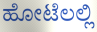
ಹೋಟೆಲಲ್ಲಿ